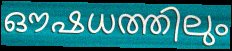
ഔഷധത്തിലും